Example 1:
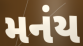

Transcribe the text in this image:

મનંય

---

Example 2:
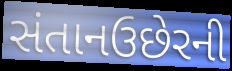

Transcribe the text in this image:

સંતાનઉછેરની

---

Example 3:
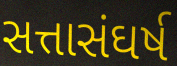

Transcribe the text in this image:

સત્તાસંઘર્ષ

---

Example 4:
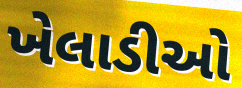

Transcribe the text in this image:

ખેલાડીઓ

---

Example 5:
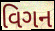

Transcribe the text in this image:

વિગન